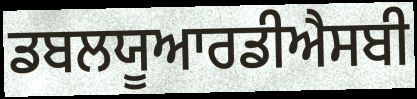
ਡਬਲਯੂਆਰਡੀਐਸਬੀ